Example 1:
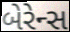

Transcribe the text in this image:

બેરેન્સ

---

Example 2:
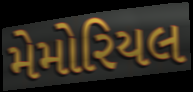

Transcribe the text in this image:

મેમોરિયલ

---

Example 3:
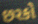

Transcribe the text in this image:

છરકો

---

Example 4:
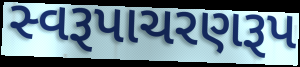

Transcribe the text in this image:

સ્વરૂપાચરણરૂપ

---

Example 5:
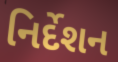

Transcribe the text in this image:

નિર્દેશન